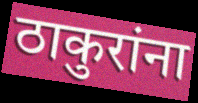
ठाकुरांना